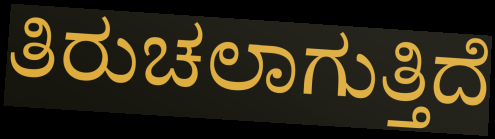
ತಿರುಚಲಾಗುತ್ತಿದೆ